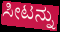
ಸೀಟನ್ನು